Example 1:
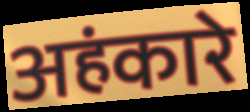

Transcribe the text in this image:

अहंकारे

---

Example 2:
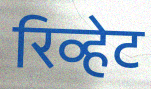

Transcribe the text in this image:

रिव्हेट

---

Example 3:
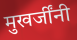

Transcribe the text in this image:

मुखर्जींनी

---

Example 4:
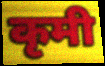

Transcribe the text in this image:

कृमी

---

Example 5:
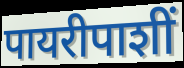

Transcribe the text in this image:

पायरीपाशीं